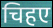
चिहए